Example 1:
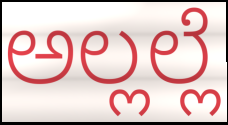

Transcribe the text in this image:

ಅಲ್ಲಲ್ಲೆ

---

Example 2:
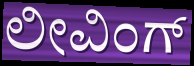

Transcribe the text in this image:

ಲೀವಿಂಗ್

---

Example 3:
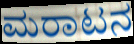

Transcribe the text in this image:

ಮರಾಟನ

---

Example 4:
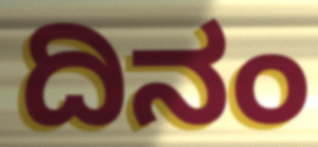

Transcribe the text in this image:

ದಿನಂ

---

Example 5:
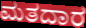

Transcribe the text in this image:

ಮತದಾರ